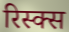
रिस्क्स